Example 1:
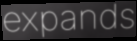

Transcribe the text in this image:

expands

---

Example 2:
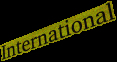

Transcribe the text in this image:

International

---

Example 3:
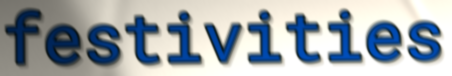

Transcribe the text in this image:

festivities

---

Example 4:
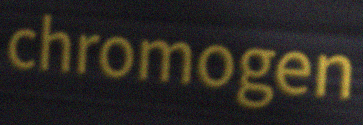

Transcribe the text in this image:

chromogen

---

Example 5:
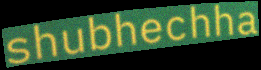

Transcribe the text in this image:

shubhechha